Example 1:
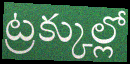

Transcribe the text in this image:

ట్రక్కుల్లో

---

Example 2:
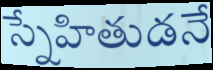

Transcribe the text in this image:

స్నేహితుడనే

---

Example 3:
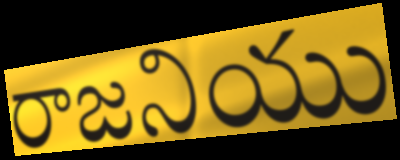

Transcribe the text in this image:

రాజనియు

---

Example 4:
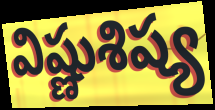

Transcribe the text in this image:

విష్ణుశిష్య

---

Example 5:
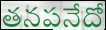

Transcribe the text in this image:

తనపనేదో